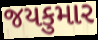
જયકુમાર